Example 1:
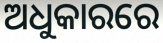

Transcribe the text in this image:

ଅଧୁକାରରେ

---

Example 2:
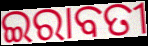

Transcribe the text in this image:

ଇରାବତୀ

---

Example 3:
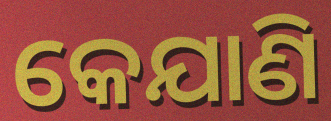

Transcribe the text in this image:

କେଯାଣି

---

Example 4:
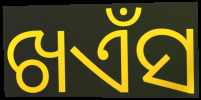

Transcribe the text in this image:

ଖଏଁସ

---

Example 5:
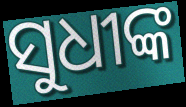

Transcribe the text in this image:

ସୁଧୀଙ୍କ